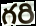
గరి